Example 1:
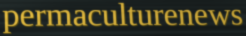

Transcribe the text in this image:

permaculturenews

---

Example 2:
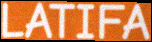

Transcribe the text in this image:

LATIFA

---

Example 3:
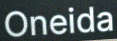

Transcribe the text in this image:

Oneida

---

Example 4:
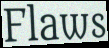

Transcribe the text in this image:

Flaws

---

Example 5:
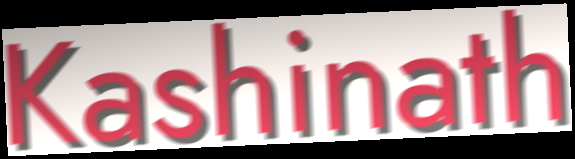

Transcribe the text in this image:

Kashinath